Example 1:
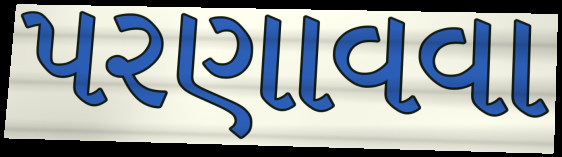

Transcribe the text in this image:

પરણાવવા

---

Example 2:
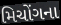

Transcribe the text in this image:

મિચોંગના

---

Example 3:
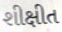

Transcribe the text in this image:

શીક્ષીત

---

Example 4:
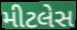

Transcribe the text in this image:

મીટલેસ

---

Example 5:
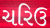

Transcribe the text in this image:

ચરિઉ